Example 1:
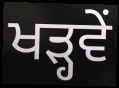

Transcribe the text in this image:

ਖੜ੍ਹਵੇਂ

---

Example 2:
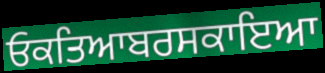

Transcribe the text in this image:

ਓਕਤਿਆਬਰਸਕਾਇਆ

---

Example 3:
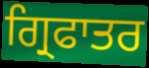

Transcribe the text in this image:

ਗ੍ਰਿਫਾਤਰ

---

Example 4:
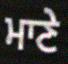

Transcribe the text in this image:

ਮਾਣੇ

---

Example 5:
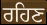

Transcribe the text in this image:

ਰਹਿਣ